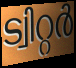
ട്വിറ്റർ